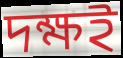
দক্ষই